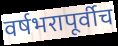
वर्षभरापूर्वीच